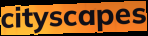
cityscapes